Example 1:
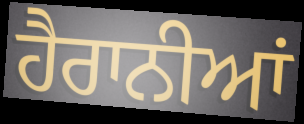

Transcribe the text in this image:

ਹੈਰਾਨੀਆਂ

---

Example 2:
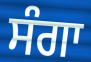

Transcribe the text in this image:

ਸੰਗਾ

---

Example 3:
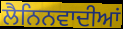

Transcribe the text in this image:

ਲੈਨਿਨਵਾਦੀਆਂ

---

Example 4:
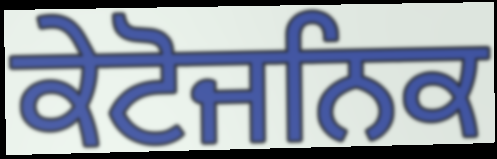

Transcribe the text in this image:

ਕੇਟੋਜਨਿਕ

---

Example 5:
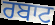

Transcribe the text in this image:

ਰਬਾਟ